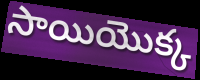
సాయియొక్క